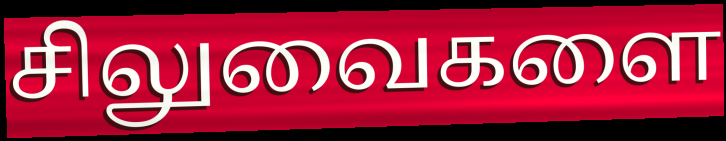
சிலுவைகளை